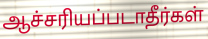
ஆச்சரியப்படாதீர்கள்